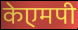
केएमपी